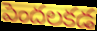
పెందలకడ